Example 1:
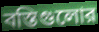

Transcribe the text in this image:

বস্তিগুলোর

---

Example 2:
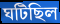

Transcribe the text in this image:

ঘটিছিল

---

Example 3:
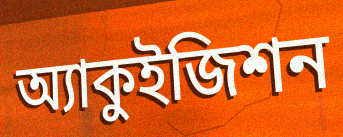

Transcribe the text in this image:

অ্যাকুইজিশন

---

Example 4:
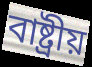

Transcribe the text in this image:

বাষ্ট্রীয়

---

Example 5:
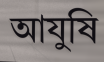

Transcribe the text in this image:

আযুষি